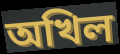
অখিল